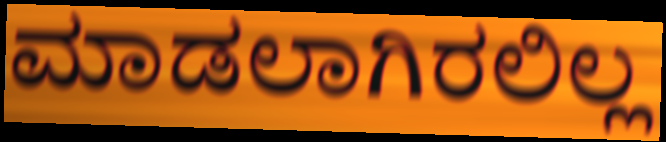
ಮಾಡಲಾಗಿರಲಿಲ್ಲ